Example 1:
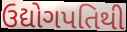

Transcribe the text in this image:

ઉદ્યોગપતિથી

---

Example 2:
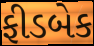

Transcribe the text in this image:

ફીડબેક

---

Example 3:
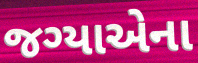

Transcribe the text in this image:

જગ્યાએના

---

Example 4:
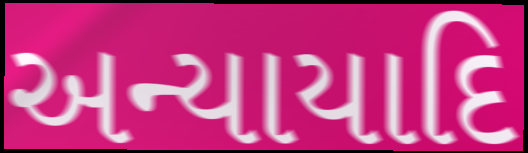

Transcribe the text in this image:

અન્યાયાદિ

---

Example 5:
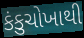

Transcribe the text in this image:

કંકુચોખાથી